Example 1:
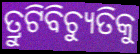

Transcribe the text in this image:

ତ୍ରୁଟିବିଚ୍ୟୁତିକୁ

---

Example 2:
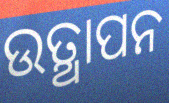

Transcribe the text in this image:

ଉତ୍ଥାପନ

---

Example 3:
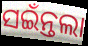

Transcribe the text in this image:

ସଇଁନ୍ତଲା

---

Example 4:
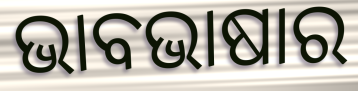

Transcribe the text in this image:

ଭାବଭାଷାର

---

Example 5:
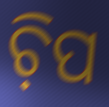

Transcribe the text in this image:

ଚ଼ିପ